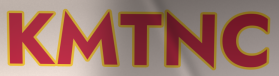
KMTNC